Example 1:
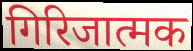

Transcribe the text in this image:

गिरिजात्मक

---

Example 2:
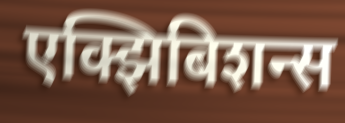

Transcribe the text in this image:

एक्झिबिशन्स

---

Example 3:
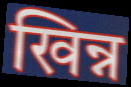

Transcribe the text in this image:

खिन्न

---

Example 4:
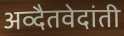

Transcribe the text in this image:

अव्दैतवेदांती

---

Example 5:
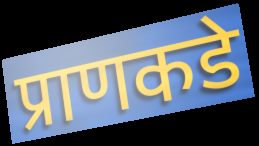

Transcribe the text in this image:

प्राणकडे